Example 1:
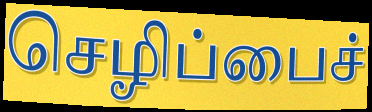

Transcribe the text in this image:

செழிப்பைச்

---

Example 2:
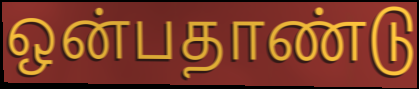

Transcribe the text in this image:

ஒன்பதாண்டு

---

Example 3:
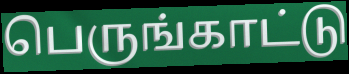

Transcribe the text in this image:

பெருங்காட்டு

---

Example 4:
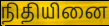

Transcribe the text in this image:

நிதியினை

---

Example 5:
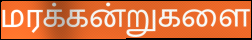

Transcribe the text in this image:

மரக்கன்றுகளை